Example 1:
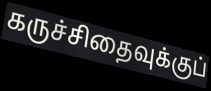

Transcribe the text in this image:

கருச்சிதைவுக்குப்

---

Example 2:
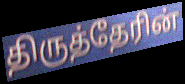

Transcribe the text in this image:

திருத்தேரின்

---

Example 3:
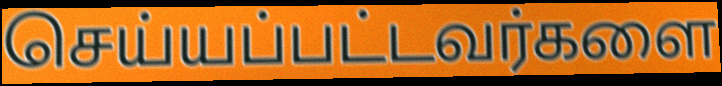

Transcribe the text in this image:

செய்யப்பட்டவர்களை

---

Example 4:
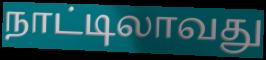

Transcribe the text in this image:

நாட்டிலாவது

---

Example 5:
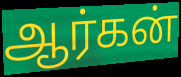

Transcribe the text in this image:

ஆர்கன்